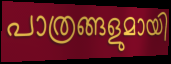
പാത്രങ്ങളുമായി